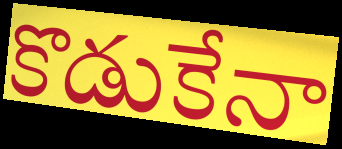
కొడుకేనా